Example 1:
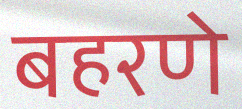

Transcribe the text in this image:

बहरणे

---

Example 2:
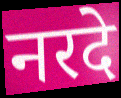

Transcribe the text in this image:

नरदे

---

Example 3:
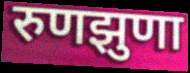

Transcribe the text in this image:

रुणझुणा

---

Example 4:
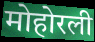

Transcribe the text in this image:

मोहोरली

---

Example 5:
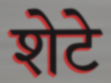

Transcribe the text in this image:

शेटे